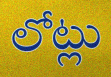
లోట్లు